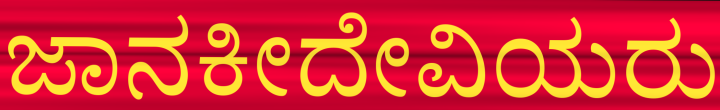
ಜಾನಕೀದೇವಿಯರು